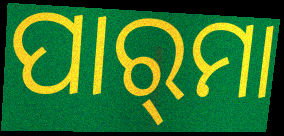
ପାର୍‌ମା